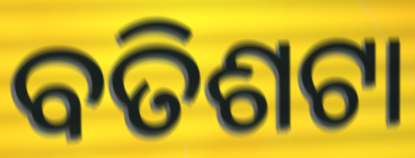
ବତିଶଟା